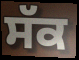
ਸੱਕ